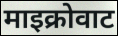
माइक्रोवाट